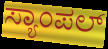
ಸ್ಯಾಂಪಲ್